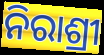
ନିରାଶ୍ରୀ